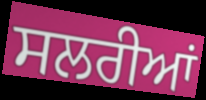
ਸਲਰੀਆਂ